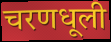
चरणधूली